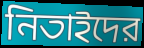
নিতাইদের